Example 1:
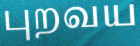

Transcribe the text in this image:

புறவய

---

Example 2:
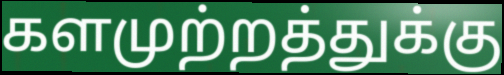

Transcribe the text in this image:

களமுற்றத்துக்கு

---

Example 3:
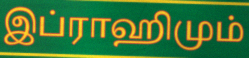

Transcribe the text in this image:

இப்ராஹிமும்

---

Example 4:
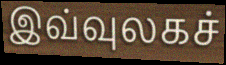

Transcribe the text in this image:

இவ்வுலகச்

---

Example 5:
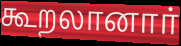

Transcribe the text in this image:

கூறலானார்